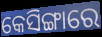
କେସିଙ୍ଗାରେ